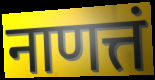
नाणत्तं